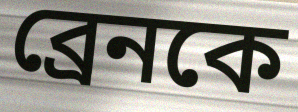
ব্রেনকে